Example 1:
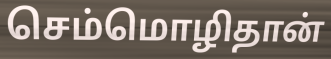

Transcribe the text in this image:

செம்மொழிதான்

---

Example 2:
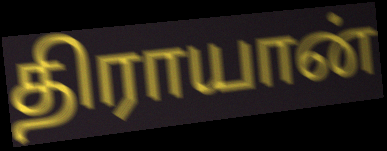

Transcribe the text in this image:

திராயான்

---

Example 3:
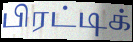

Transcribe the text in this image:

பிரட்டிக்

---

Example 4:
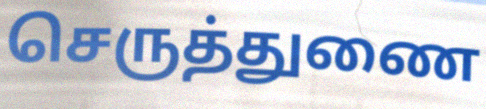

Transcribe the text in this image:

செருத்துணை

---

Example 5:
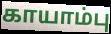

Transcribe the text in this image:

காயாம்பு